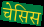
चेसिस